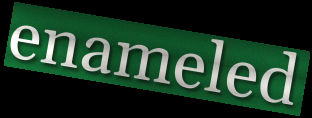
enameled